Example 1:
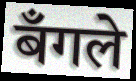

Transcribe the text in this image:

बँगले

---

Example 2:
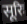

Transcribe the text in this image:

सूरिः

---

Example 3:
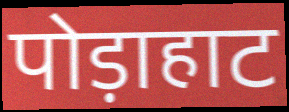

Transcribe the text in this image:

पोड़ाहाट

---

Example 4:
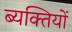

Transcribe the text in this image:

ब्यक्तियों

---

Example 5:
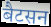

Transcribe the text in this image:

बैटसन